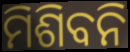
ମିଶିବନି